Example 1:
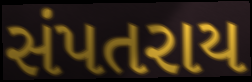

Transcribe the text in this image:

સંપતરાય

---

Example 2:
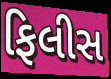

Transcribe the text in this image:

ફિલીસ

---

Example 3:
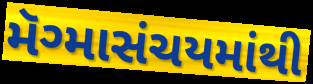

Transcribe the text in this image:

મૅગ્માસંચયમાંથી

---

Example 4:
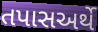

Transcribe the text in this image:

તપાસઅર્થે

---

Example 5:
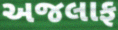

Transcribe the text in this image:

અજલાફ